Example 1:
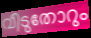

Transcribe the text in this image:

വീടുതോറും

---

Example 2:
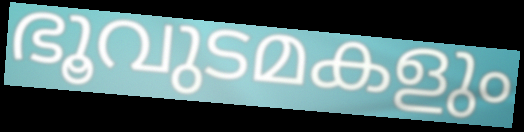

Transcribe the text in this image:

ഭൂവുടമകളും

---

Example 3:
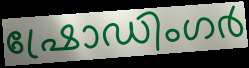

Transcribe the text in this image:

ഷ്രോഡിംഗർ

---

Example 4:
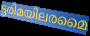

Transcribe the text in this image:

ട്ടരിമയിലരമൈ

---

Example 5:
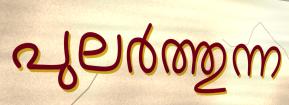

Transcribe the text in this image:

പുലർത്തുന്ന